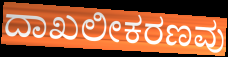
ದಾಖಲೀಕರಣವು